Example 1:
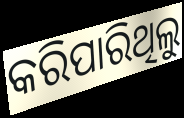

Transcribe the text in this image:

କରିପାରିଥିଲୁ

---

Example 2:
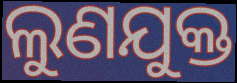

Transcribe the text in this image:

ଲୁଣଯୁକ୍ତ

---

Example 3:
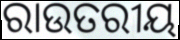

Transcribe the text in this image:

ରାଉତରୀୟ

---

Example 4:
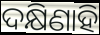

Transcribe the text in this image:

ଦକ୍ଷିଣାହି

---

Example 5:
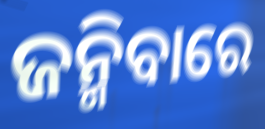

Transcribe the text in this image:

ଜନ୍ମିବାରେ